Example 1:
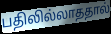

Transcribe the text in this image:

பதிலில்லாததால்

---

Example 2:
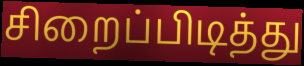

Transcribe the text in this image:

சிறைப்பிடித்து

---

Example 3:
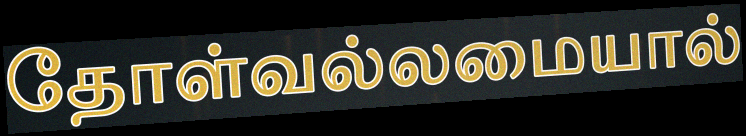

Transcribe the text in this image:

தோள்வல்லமையால்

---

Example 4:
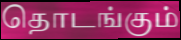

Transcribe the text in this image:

தொடங்கும்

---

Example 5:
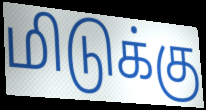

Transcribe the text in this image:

மிடுக்கு